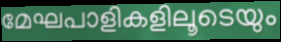
മേഘപാളികളിലൂടെയും